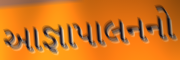
આજ્ઞાપાલનનો